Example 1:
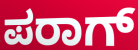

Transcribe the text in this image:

ಪರಾಗ್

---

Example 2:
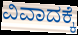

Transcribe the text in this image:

ವಿವಾದಕ್ಕೆ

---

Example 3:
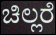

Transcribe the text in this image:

ಚಿಲ್ಲರೆ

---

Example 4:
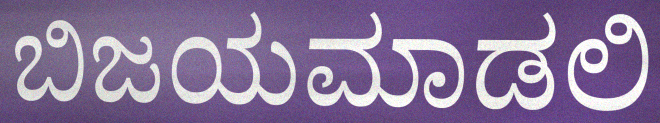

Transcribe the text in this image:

ಬಿಜಯಮಾಡಲಿ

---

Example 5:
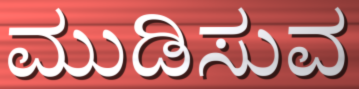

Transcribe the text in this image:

ಮುಡಿಸುವ